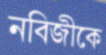
নবিজীকে